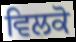
ਵਿਲਕੋ